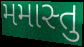
મમાસ્તુ